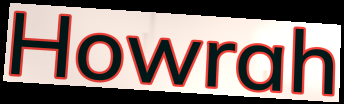
Howrah